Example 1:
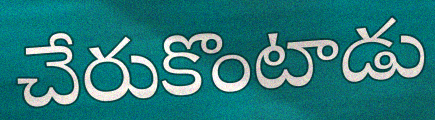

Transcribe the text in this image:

చేరుకొంటాడు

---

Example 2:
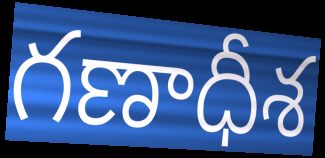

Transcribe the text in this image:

గణాధీశ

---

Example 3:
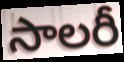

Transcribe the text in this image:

సాలరీ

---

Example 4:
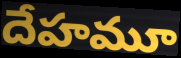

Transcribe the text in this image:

దేహమూ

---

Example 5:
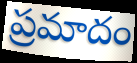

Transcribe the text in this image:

ప్రమాదం